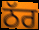
ਠੱਰ